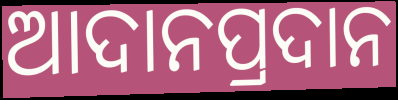
ଆଦାନପ୍ରଦାନ